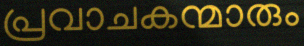
പ്രവാചകന്മാരും